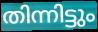
തിന്നിട്ടും